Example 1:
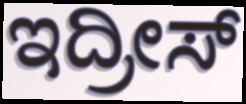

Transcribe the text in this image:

ಇದ್ರೀಸ್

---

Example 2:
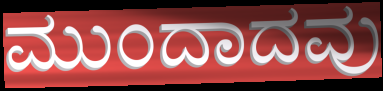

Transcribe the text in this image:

ಮುಂದಾದವು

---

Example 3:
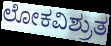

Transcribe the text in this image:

ಲೋಕವಿಶ್ರುತ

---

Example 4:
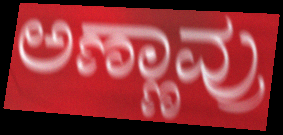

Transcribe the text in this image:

ಅಣ್ಣಾವ್ರು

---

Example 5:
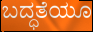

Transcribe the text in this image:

ಬದ್ಧತೆಯೂ